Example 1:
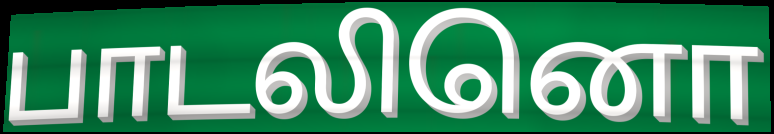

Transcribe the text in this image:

பாடலினொ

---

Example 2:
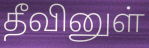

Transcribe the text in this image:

தீவினுள்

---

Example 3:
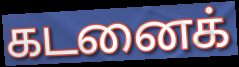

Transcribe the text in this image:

கடனைக்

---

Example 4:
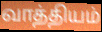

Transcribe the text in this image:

வாத்தியம்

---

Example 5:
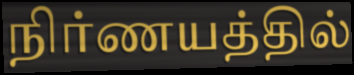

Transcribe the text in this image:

நிர்ணயத்தில்